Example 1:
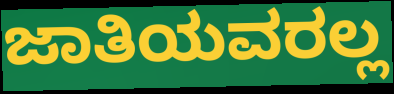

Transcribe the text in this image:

ಜಾತಿಯವರಲ್ಲ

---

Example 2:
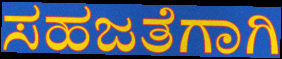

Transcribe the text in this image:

ಸಹಜತೆಗಾಗಿ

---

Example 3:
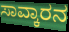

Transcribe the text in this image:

ಸಾವ್ಕಾರನ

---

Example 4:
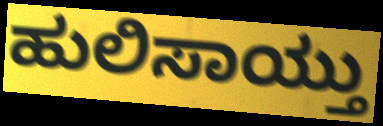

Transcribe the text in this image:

ಹುಲಿಸಾಯ್ತು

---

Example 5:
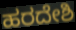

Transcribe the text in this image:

ಹರದೇಶಿ